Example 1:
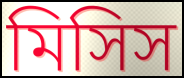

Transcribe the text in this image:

মিসিস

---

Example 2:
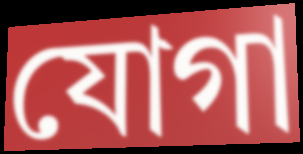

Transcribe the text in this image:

যোগা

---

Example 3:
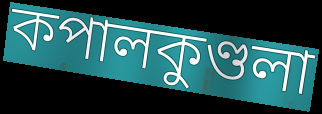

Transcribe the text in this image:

কপালকুণ্ডলা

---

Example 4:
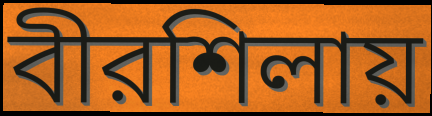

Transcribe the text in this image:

বীরশিলায়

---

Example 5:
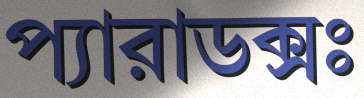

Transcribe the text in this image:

প্যারাডক্সঃ